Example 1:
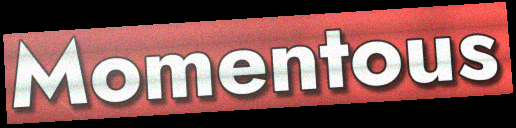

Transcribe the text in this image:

Momentous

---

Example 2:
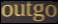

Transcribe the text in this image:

outgo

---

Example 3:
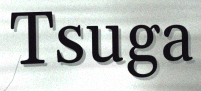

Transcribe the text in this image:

Tsuga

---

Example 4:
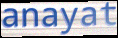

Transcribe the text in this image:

anayat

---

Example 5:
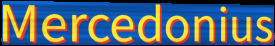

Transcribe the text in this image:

Mercedonius